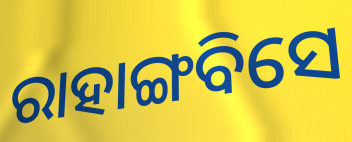
ରାହାଙ୍ଗବିସେ